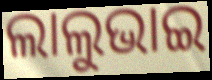
ଲାଲୁଭାଇ